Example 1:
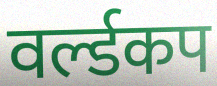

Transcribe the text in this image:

वर्ल्‍डकप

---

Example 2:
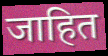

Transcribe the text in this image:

जाहित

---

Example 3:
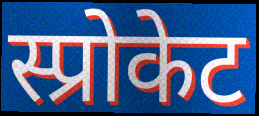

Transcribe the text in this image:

स्प्रोकेट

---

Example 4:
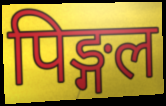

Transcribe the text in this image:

पिङ्गल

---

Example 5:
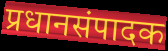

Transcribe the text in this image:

प्रधानसंपादक